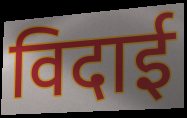
विदाई